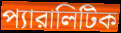
প্যারালিটিক